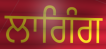
ਲਾਗਿੰਗ